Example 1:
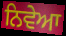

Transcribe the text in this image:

ਨਿਵੇਆ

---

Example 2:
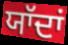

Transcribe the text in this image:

ਯਾੱਦਾਂ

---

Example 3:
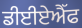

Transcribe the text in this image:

ਡੀਈਏਐੱਫ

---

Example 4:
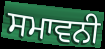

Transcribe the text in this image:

ਸਮਾਵਨੀ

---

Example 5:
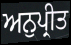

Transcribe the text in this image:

ਅਨੁਪ੍ਰੀਤ